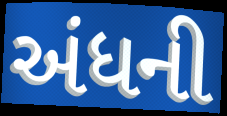
અંધની